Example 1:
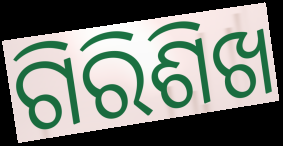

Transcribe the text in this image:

ଗିରିଶିଖ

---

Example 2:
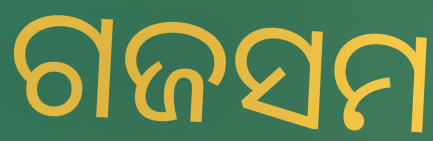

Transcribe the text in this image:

ଗଜସମ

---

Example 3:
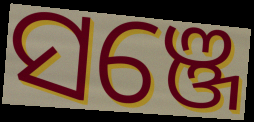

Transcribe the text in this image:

ସଞ୍ଜେ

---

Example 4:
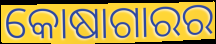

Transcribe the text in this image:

କୋଷାଗାରର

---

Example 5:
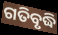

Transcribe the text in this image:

ଗତିବୃଦ୍ଧି